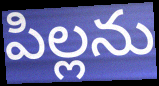
పిల్లను